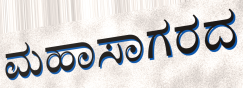
ಮಹಾಸಾಗರದ